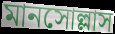
মানসোল্লাস